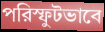
পরিস্ফুটভাবে